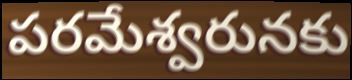
పరమేశ్వరునకు